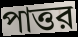
পাত্তর